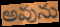
అవును